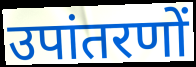
उपांतरणों